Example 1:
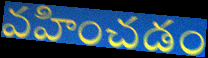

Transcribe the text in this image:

వహించడం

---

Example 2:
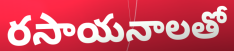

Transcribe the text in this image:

రసాయనాలతో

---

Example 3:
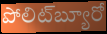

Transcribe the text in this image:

పోలిట్‌బ్యూరో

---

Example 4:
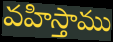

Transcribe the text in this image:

వహిస్తాము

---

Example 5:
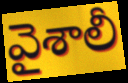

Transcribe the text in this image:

వైశాలీ